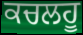
ਕਚਲਹੂ